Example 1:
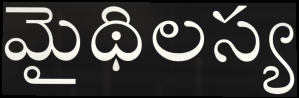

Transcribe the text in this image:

మైథిలస్య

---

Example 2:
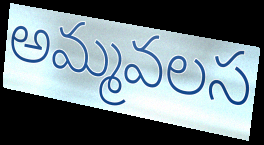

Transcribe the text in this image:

అమ్మవలస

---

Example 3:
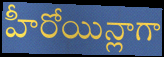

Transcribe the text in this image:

హీరోయిన్లాగా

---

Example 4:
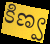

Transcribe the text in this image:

కిణ్వ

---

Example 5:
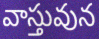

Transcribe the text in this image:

వాస్తువున